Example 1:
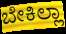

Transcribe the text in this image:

ಬೇಕಿಲ್ಲಾ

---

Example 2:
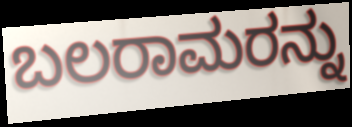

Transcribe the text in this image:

ಬಲರಾಮರನ್ನು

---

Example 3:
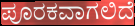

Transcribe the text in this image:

ಪೂರಕವಾಗಲಿದೆ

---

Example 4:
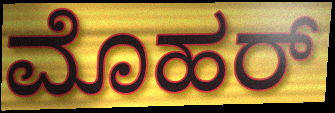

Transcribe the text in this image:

ಮೊಹರ್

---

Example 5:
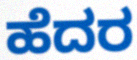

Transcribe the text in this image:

ಹೆದರ